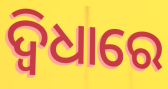
ଦ୍ଵିଧାରେ